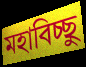
মহাবিচ্ছু